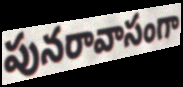
పునరావాసంగా